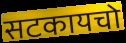
सटकायचो